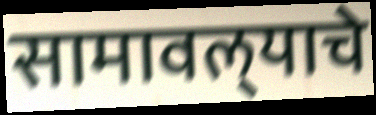
सामावल्याचे